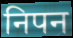
निपन